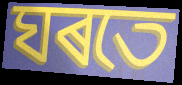
ঘৰতে